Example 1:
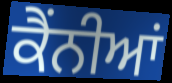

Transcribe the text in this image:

ਕੈਂਨੀਆਂ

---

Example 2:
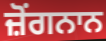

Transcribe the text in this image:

ਜ਼ੋਂਗਨਾਨ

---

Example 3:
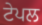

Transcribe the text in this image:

ਟੇਪਲ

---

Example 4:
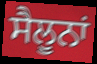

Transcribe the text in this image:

ਸੈਲੂਨਾਂ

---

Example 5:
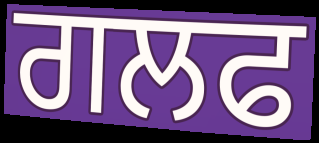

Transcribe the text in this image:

ਗਲਫ